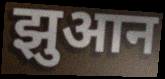
झुआन